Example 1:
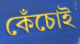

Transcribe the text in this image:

কেঁচোই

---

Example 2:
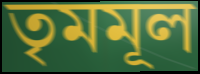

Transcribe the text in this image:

তৃমমূল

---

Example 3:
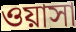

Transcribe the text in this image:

ওয়াসা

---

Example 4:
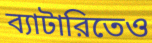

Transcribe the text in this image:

ব্যাটারিতেও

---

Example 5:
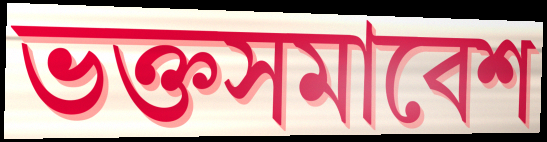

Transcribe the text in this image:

ভক্তসমাবেশ